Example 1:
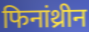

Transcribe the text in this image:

फिनांथ्रीन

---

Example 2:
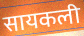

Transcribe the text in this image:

सायकली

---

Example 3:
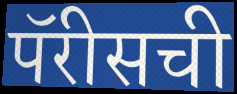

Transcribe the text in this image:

पॅरीसची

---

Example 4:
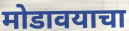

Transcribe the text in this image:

मोडावयाचा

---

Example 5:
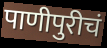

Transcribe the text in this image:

पाणीपुरीचं